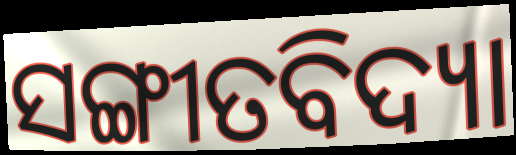
ସଙ୍ଗୀତବିଦ୍ୟା